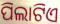
ପିଲାଟିଏ